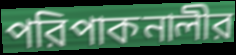
পরিপাকনালীর